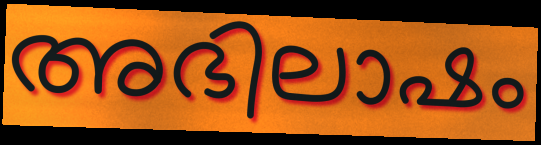
അഭിലാഷം